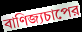
বাণিজ্যচাপের